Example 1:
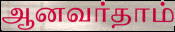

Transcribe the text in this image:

ஆனவர்தாம்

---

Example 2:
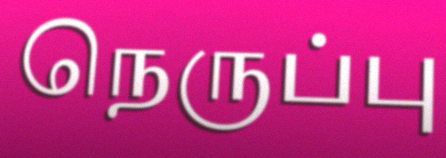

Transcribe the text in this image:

நெருப்பு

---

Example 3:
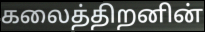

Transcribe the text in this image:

கலைத்திறனின்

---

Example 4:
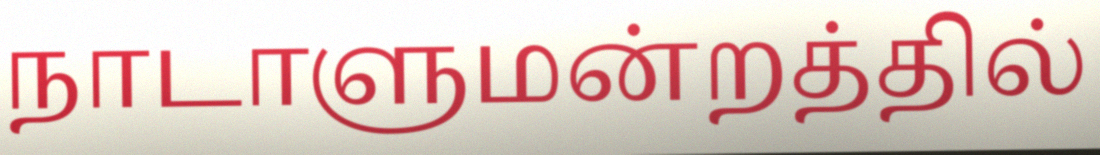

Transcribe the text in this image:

நாடாளுமன்றத்தில்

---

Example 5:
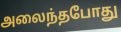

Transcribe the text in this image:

அலைந்தபோது